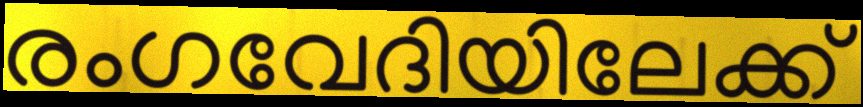
രംഗവേദിയിലേക്ക്